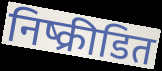
निष्क्रीडित